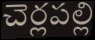
చెర్లపల్లి